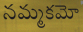
నమ్మకమో